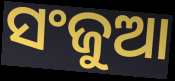
ସଂଜୁଆ